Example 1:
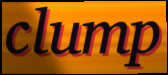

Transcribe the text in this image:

clump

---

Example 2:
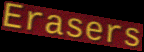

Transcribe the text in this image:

Erasers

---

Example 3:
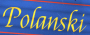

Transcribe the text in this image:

Polanski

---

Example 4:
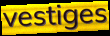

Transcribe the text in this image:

vestiges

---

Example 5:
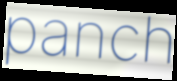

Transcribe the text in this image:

panch